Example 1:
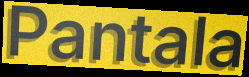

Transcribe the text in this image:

Pantala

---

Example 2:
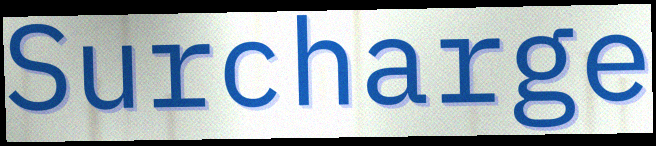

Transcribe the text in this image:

Surcharge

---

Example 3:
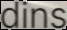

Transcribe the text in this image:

dins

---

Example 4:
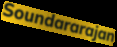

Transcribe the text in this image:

Soundararajan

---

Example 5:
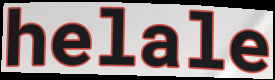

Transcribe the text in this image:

helale